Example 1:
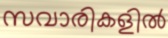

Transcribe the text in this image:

സവാരികളിൽ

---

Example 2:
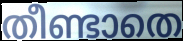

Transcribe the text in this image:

തീണ്ടാതെ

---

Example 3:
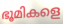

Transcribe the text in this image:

ഭൂമികളെ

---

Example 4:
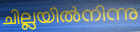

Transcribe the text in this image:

ചില്ലയിൽനിന്നു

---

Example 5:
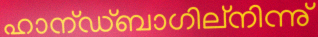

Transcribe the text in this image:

ഹാന്ഡ്ബാഗില്നിന്നു്